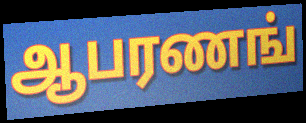
ஆபரணங்